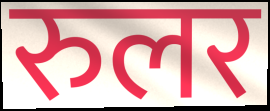
रुलर